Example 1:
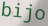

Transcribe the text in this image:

bijo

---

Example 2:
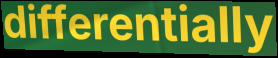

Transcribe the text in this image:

differentially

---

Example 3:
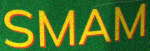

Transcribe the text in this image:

SMAM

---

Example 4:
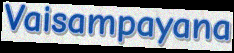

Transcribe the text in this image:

Vaisampayana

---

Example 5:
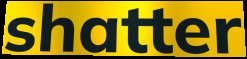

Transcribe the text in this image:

shatter